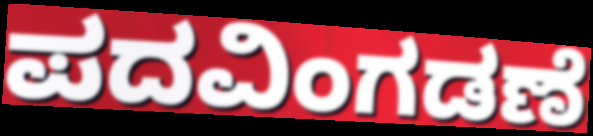
ಪದವಿಂಗಡಣೆ